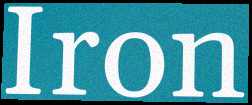
Iron